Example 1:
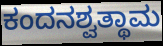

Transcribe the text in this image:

ಕಂದನಶ್ವತ್ಥಾಮ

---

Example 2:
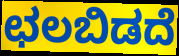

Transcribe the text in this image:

ಛಲಬಿಡದೆ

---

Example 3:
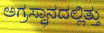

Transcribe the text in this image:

ಅಗ್ರಸ್ಥಾನದಲ್ಲಿತ್ತು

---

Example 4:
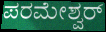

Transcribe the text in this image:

ಪರಮೇಶ್ವರ್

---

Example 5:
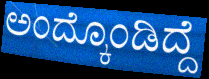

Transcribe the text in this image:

ಅಂದ್ಕೊಂಡಿದ್ದೆ